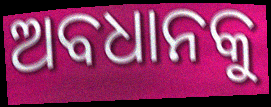
ଅବଧାନକୁ